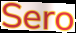
Sero